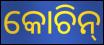
କୋଚିନ୍